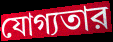
যোগ্যতার